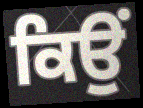
ਕਿਉੰ